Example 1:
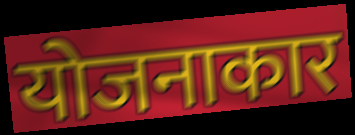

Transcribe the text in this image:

योजनाकार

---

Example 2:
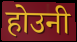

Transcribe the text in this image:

होउनी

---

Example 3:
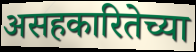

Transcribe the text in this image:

असहकारितेच्या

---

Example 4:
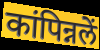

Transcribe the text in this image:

कांपिन्नलें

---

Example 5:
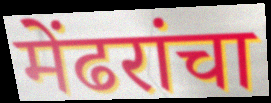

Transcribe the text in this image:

मेंढरांचा